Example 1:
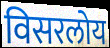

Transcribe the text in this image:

विसरलोय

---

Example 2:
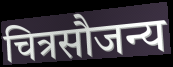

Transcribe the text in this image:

चित्रसौजन्य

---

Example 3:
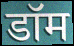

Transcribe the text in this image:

डॉम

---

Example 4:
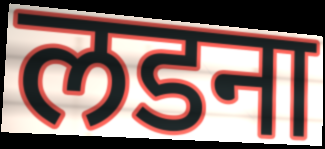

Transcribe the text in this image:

लडना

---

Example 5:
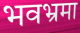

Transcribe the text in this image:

भवभ्रमा